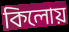
কিলোয়